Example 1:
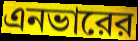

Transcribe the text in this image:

এনভারের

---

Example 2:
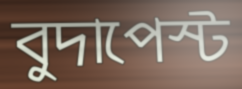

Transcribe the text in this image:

বুদাপেস্ট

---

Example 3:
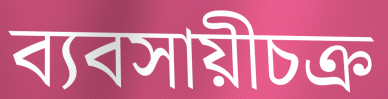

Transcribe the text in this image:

ব্যবসায়ীচক্র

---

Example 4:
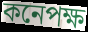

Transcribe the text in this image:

কনেপক্ষ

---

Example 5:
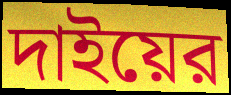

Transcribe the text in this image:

দাইয়ের